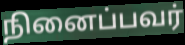
நினைப்பவர்